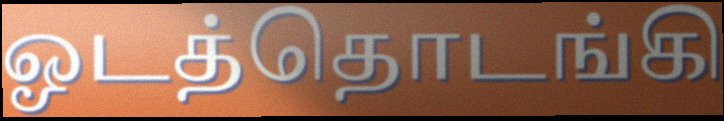
ஓடத்தொடங்கி